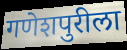
गणेशपुरीला